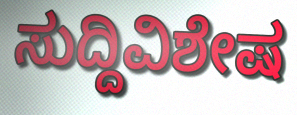
ಸುದ್ದಿವಿಶೇಷ